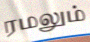
ரமலும்